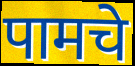
पामचे